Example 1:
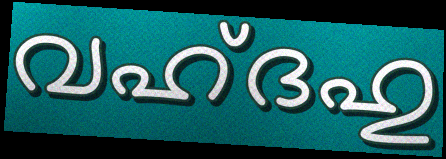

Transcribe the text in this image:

വഹ്ദഹു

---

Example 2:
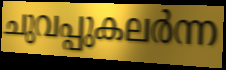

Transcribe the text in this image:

ചുവപ്പുകലർന്ന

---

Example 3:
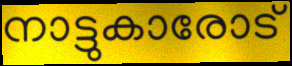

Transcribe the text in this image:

നാട്ടുകാരോട്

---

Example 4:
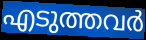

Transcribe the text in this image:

എടുത്തവർ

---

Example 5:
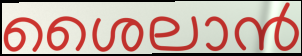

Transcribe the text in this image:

ശൈലാൻ